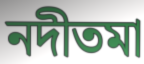
নদীতমা